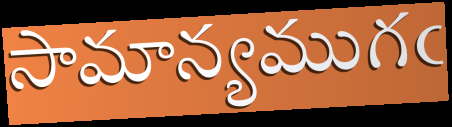
సామాన్యముగఁ